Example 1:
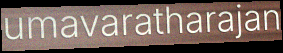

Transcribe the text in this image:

umavaratharajan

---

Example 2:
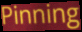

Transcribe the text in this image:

Pinning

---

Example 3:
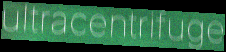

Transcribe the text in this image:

ultracentrifuge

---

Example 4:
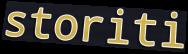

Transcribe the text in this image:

storiti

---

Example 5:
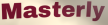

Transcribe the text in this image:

Masterly